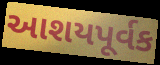
આશયપૂર્વક